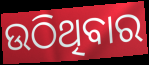
ଉଠିଥିବାର